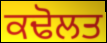
ਕਢੋਲਤ